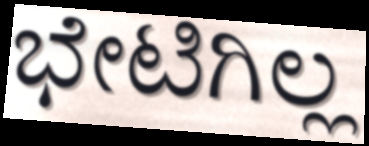
ಭೇಟಿಗಿಲ್ಲ